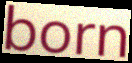
born